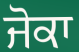
ਜੋਕਾ